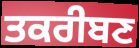
ਤਕਰੀਬਣ